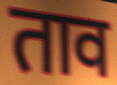
ताव